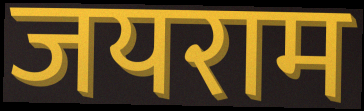
जयराम